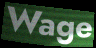
Wage